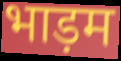
भाड़म